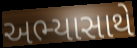
અભ્યાસાથે